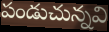
పండుచున్నవి